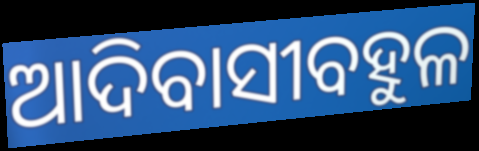
ଆଦିବାସୀବହୁଳ